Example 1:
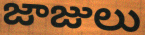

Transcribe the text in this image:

జాజులు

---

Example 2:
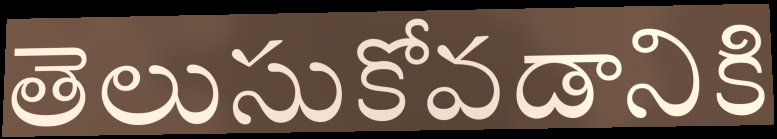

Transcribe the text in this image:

తెలుసుకోవడానికి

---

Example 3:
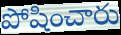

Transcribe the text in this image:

పోషించారు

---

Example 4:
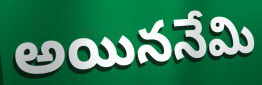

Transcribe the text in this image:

అయిననేమి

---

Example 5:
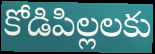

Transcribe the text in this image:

కోడిపిల్లలకు